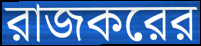
রাজকরের